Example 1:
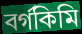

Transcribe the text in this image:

বর্গকিমি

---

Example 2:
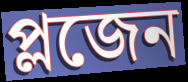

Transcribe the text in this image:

প্লজেন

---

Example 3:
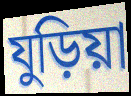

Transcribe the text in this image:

যুড়িয়া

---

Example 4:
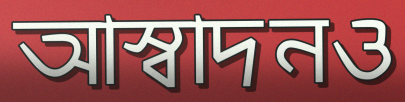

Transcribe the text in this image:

আস্বাদনও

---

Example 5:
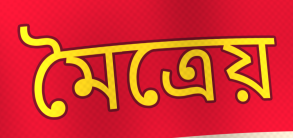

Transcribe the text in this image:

মৈত্রেয়